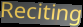
Reciting